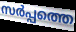
സർപ്പത്തെ